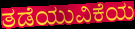
ತಡೆಯುವಿಕೆಯ